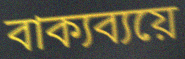
বাক্যব্যয়ে